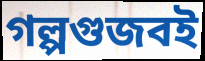
গল্পগুজবই